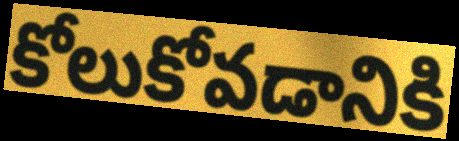
కోలుకోవడానికి